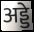
अड्डे